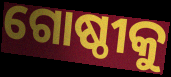
ଗୋଷ୍ଠୀକୁ